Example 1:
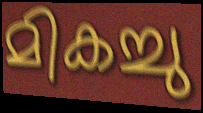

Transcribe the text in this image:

മികച്ചു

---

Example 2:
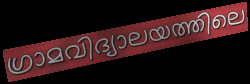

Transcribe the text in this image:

ഗ്രാമവിദ്യാലയത്തിലെ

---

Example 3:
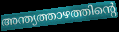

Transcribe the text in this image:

അന്ത്യത്താഴത്തിന്റെ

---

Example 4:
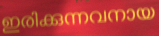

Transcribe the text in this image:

ഇരിക്കുന്നവനായ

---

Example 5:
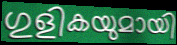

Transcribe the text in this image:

ഗുളികയുമായി